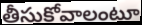
తీసుకోవాలంటూ